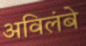
अविलंबे